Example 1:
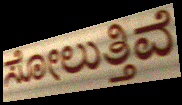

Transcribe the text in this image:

ಸೋಲುತ್ತಿವೆ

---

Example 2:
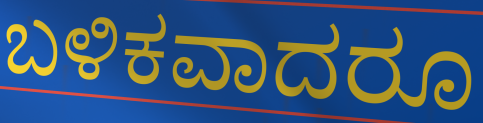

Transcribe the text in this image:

ಬಳಿಕವಾದರೂ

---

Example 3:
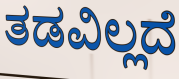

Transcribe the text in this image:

ತಡವಿಲ್ಲದೆ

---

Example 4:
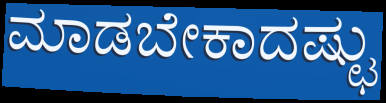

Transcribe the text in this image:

ಮಾಡಬೇಕಾದಷ್ಟು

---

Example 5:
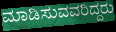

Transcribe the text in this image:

ಮಾಡಿಸುವವರಿದ್ದರು